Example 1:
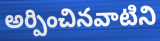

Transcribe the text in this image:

అర్పించినవాటిని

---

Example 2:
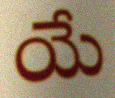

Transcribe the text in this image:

యే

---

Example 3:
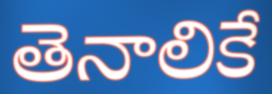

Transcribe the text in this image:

తెనాలికే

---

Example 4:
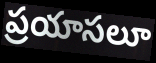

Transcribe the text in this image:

ప్రయాసలూ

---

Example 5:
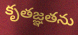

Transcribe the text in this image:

కృతజ్ఞతను